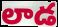
లాడ